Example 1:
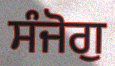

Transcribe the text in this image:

ਸੰਜੋਗੁ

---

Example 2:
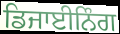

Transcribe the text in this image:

ਡਿਜਾਈਨਿੰਗ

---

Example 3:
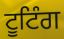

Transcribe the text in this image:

ਟੂਟਿੰਗ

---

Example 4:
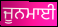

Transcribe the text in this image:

ਜੂਨਮਾਈ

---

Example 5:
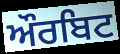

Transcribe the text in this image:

ਔਰਬਿਟ